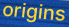
origins